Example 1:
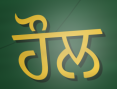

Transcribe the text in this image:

ਹੌਲ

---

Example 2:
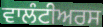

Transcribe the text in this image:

ਵਾਲੰਟੀਅਰਸ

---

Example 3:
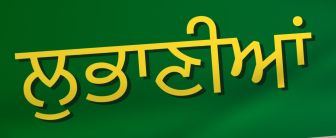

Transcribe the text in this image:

ਲੁਭਾਣੀਆਂ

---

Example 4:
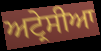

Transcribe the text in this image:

ਅਟ੍ਰੇਸੀਆ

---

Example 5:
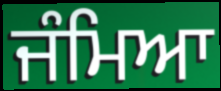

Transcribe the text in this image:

ਜੰਮਿਆ